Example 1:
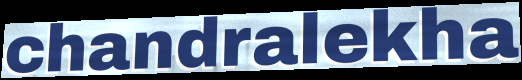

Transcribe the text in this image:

chandralekha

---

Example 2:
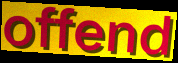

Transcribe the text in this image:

offend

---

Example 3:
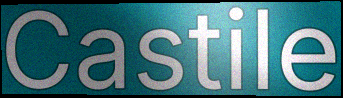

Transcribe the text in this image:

Castile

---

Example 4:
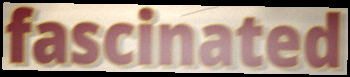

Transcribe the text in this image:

fascinated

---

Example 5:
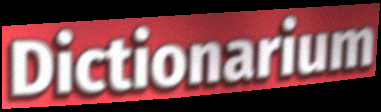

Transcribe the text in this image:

Dictionarium